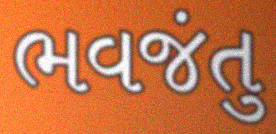
ભવજંતુ